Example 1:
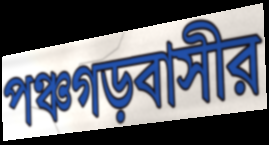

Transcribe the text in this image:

পঞ্চগড়বাসীর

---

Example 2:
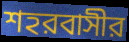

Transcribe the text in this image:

শহরবাসীর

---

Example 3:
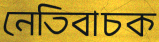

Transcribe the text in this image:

নেতিবাচক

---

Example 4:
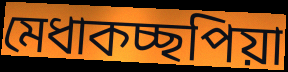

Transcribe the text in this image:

মেধাকচ্ছপিয়া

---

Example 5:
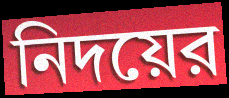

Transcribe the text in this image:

নিদয়ের